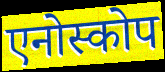
एनोस्कोप